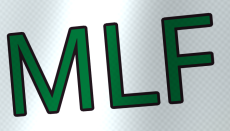
MLF